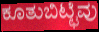
ಕೂತುಬಿಟ್ಟೆವು